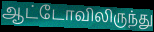
ஆட்டோவிலிருந்து